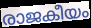
രാജകീയം